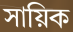
সায়িক